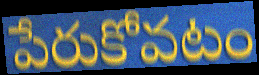
పేరుకోవటం